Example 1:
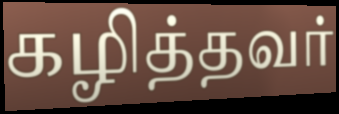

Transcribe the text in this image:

கழித்தவர்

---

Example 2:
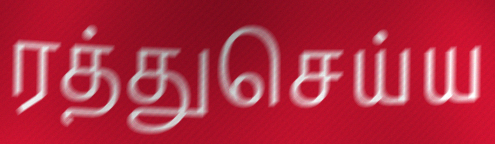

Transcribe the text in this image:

ரத்துசெய்ய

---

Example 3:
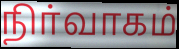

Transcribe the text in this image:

நிர்வாகம்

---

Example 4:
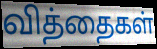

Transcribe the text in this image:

வித்தைகள்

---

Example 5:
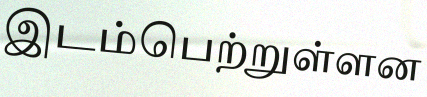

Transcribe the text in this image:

இடம்பெற்றுள்ளன